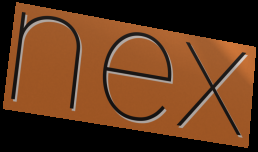
nex